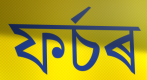
ফৰ্চৰ